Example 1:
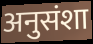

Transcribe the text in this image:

अनुसंशा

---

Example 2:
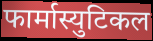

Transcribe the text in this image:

फार्मास्युटिकल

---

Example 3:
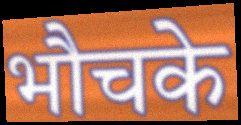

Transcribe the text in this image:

भौचके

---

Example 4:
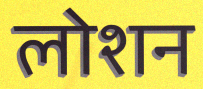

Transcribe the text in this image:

लोशन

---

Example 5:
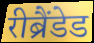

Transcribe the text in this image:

रीब्रैंडेड